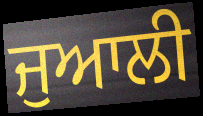
ਜੁਆਲੀ